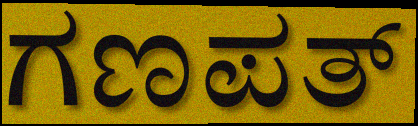
ಗಣಪತ್